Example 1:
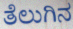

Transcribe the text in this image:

ತೆಲುಗಿನ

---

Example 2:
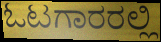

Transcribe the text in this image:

ಓಟಗಾರರಲ್ಲಿ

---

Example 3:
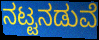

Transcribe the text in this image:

ನಟ್ಟನಡುವೆ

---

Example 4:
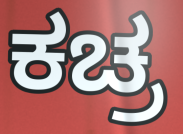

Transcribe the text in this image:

ಕಚ್ರ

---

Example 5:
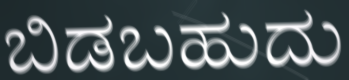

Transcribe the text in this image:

ಬಿಡಬಹುದು